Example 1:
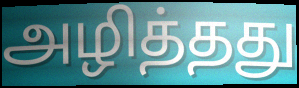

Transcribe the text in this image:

அழித்தது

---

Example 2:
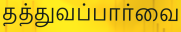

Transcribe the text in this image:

தத்துவப்பார்வை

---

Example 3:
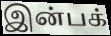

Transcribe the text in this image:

இன்பக்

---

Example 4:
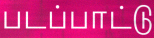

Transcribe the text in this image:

படப்பாட்டு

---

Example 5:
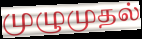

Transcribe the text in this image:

முழுமுதல்